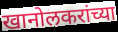
खानोलकरांच्या